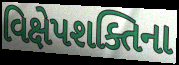
વિક્ષેપશક્તિના